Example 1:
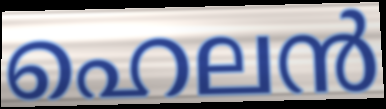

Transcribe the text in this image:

ഹെലൻ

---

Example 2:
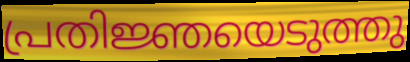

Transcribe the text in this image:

പ്രതിജ്ഞയെടുത്തു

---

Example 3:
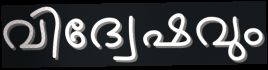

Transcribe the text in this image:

വിദ്വേഷവും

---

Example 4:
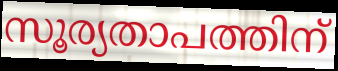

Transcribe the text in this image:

സൂര്യതാപത്തിന്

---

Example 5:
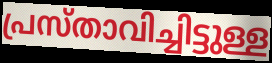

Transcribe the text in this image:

പ്രസ്താവിച്ചിട്ടുള്ള